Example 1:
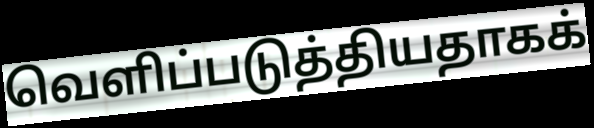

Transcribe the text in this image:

வெளிப்படுத்தியதாகக்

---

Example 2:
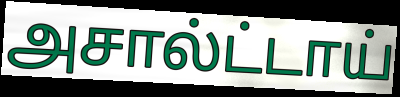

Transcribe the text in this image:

அசால்ட்டாய்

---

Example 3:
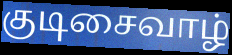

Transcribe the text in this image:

குடிசைவாழ்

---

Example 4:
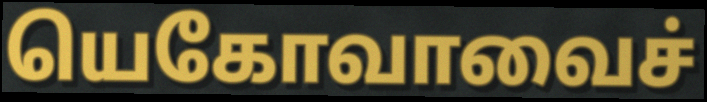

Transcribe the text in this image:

யெகோவாவைச்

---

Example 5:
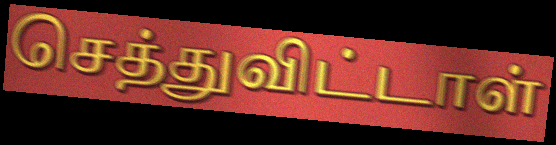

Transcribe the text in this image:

செத்துவிட்டாள்